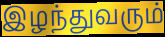
இழந்துவரும்